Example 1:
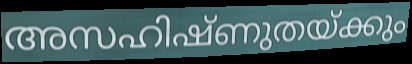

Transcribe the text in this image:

അസഹിഷ്ണുതയ്ക്കും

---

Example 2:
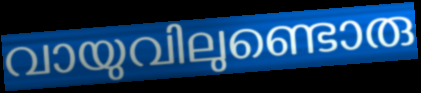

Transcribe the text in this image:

വായുവിലുണ്ടൊരു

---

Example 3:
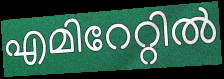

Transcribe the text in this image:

എമിറേറ്റിൽ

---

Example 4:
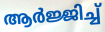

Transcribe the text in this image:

ആർജ്ജിച്ച്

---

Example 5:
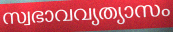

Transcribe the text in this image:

സ്വഭാവവ്യത്യാസം